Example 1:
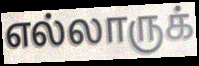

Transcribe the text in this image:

எல்லாருக்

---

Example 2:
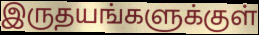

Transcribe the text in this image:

இருதயங்களுக்குள்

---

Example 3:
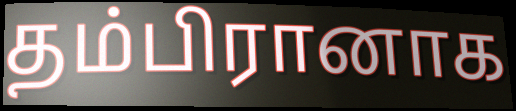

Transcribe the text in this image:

தம்பிரானாக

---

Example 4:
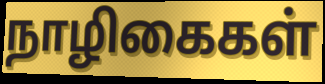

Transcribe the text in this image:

நாழிகைகள்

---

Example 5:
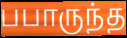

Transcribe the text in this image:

பபாருந்த